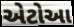
એટોઆ